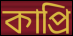
কাপ্রি